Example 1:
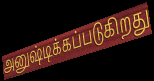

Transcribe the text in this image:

அனுஷ்டிக்கப்படுகிறது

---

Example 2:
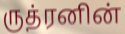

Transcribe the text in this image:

ருத்ரனின்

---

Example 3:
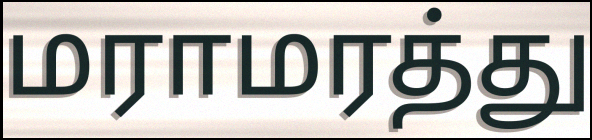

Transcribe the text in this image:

மராமரத்து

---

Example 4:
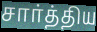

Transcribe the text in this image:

சார்த்திய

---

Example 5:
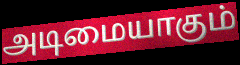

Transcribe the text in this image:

அடிமையாகும்